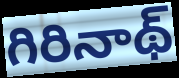
గిరినాథ్